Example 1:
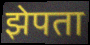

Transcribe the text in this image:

झेपता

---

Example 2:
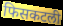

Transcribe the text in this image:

फिसकटली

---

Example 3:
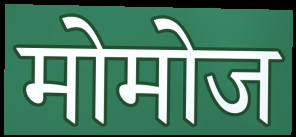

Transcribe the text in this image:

मोमोज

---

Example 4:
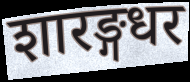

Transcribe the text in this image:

शारङ्गधर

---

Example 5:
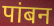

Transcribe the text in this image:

पांबन